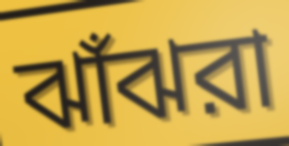
ঝাঁঝরা